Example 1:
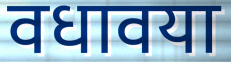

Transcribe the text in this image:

वधावया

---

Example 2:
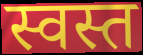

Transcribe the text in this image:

स्वस्त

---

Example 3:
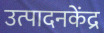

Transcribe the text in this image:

उत्पादनकेंद्र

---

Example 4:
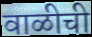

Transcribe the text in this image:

वाळीची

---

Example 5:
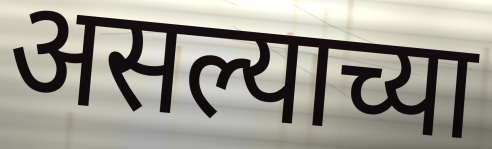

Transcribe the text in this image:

असल्याच्या